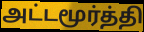
அட்டமூர்த்தி